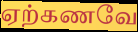
ஏற்கணவே